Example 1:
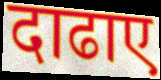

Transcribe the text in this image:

दाढाए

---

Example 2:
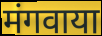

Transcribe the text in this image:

मंगवाया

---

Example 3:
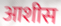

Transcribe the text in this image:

आशीस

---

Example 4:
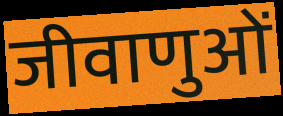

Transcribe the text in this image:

जीवाणुओं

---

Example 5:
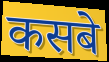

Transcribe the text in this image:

कसबे